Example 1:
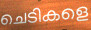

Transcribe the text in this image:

ചെടികളെ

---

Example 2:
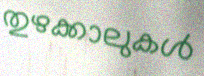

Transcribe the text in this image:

തുഴക്കാലുകൾ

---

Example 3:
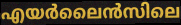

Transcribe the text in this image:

എയർലൈൻസിലെ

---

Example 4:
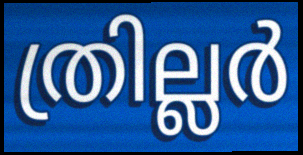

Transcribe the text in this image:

ത്രില്ലർ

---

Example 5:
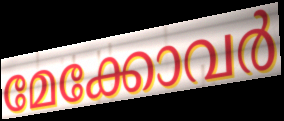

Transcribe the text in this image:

മേക്കോവർ